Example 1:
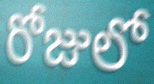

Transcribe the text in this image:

రోజులో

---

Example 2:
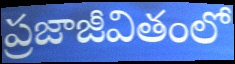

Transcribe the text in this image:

ప్రజాజీవితంలో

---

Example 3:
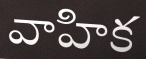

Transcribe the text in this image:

వాహిక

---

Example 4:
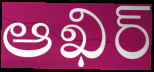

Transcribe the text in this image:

ఆఖిర్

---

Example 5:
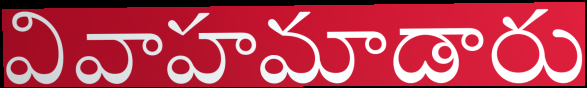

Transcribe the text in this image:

వివాహమాడారు